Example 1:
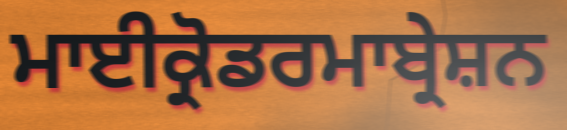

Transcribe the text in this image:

ਮਾਈਕ੍ਰੋਡਰਮਾਬ੍ਰੇਸ਼ਨ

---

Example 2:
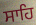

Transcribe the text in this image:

ਸਾਹਿ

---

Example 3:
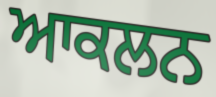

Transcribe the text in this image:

ਆਕਲਨ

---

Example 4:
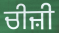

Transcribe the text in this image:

ਚੀਜ਼ੀ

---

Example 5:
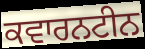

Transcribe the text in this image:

ਕਵਾਰਨਟੀਨ